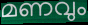
മണവും